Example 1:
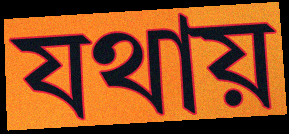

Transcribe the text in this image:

যথায়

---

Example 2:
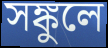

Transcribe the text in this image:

সঙ্কুলে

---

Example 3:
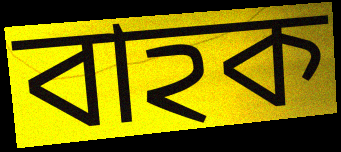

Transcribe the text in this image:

বাহক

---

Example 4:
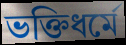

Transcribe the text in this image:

ভক্তিধর্মে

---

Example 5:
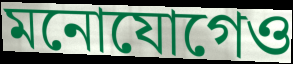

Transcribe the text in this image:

মনোযোগেও